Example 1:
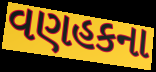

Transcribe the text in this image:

વણહકના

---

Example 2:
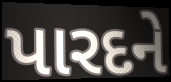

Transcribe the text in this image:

પારદને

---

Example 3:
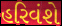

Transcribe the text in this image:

હરિવંશે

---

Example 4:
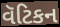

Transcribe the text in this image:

વૅટિકન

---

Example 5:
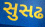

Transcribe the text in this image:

સુસઢ